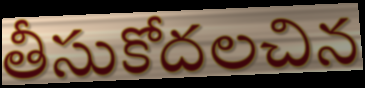
తీసుకోదలచిన